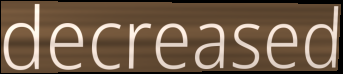
decreased